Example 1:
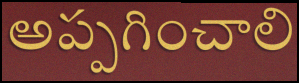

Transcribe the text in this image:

అప్పగించాలి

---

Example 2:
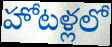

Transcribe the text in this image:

హోటళ్లలో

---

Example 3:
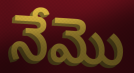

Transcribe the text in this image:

నేమొ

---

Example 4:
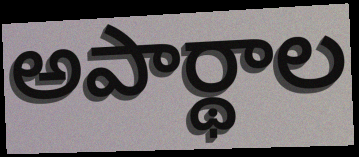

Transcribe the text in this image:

అపార్థాల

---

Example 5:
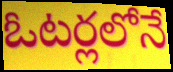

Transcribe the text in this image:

ఓటర్లలోనే